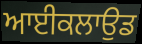
ਆਈਕਲਾਉਡ